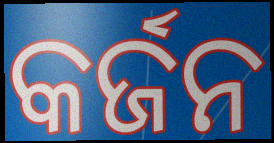
କର୍ଜନ